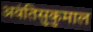
अवंतिसुकुमाल